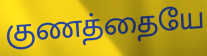
குணத்தையே